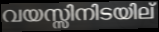
വയസ്സിനിടയില്